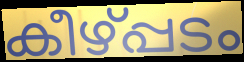
കീഴ്പ്പടം